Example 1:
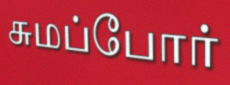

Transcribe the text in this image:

சுமப்போர்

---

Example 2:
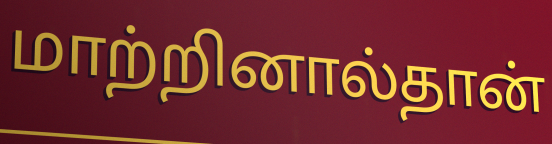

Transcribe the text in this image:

மாற்றினால்தான்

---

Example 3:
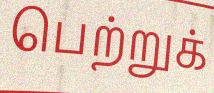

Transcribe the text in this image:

பெற்றுக்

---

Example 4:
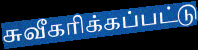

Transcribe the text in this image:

சுவீகரிக்கப்பட்டு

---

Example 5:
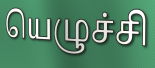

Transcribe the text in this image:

யெழுச்சி